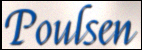
Poulsen